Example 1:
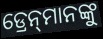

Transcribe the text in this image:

ଡ୍ରେନ୍‌ମାନଙ୍କୁ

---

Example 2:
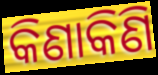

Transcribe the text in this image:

କିଣାକିଣି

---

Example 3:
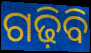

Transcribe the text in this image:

ଗଢ଼ିବି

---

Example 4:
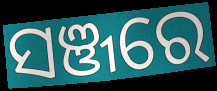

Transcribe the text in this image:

ସଞ୍ଜରେ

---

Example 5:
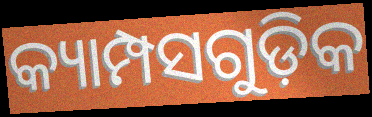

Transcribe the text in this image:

କ୍ୟାମ୍ପସଗୁଡ଼ିକ